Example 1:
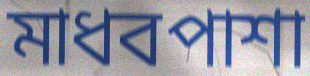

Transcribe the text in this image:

মাধবপাশা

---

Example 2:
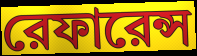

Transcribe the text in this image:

রেফারেন্স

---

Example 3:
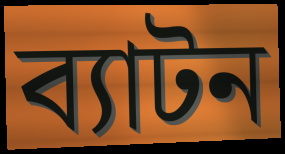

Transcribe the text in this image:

ব্যাটন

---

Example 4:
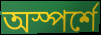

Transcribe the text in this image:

অস্পর্শে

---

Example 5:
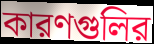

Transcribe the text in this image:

কারণগুলির